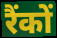
रैंकों